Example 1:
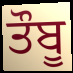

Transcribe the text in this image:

ਤੌਬੂ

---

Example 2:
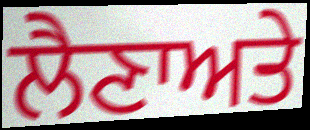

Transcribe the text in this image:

ਲੈਣਾਅਤੇ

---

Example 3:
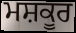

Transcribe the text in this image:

ਮਸ਼ਕੂਰ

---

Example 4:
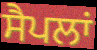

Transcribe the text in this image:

ਸੈਪਲਾਂ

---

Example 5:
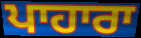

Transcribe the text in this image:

ਪਾਹਾਰਾ